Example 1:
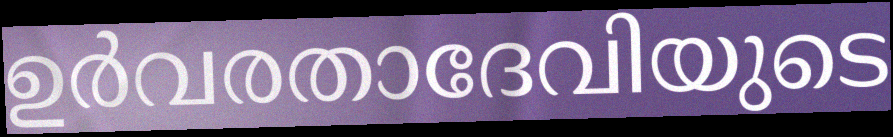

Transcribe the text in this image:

ഉർവരതാദേവിയുടെ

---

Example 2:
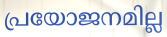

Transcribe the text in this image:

പ്രയോജനമില്ല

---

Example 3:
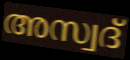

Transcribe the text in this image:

അസ്വദ്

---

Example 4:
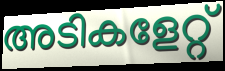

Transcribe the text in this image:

അടികളേറ്റ്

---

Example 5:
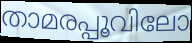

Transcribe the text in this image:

താമരപ്പൂവിലോ